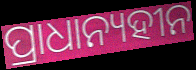
ପ୍ରାଧାନ୍ୟହୀନ